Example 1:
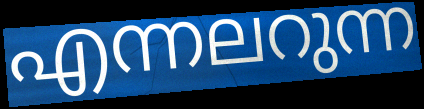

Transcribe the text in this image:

എന്നലറുന്ന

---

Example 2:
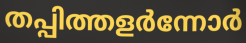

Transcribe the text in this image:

തപ്പിത്തളർന്നോർ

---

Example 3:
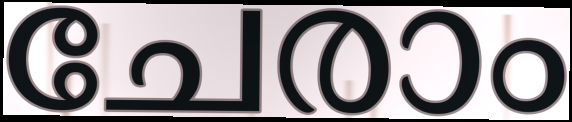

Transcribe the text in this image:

ചേരാം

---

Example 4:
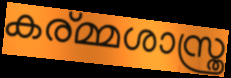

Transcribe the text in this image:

കര്മ്മശാസ്ത്ര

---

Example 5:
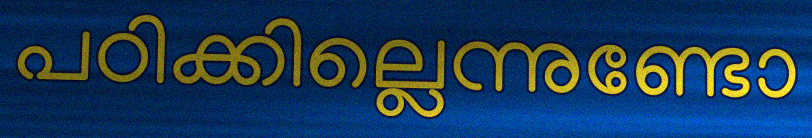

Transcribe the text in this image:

പഠിക്കില്ലെന്നുണ്ടോ